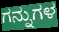
ಗನ್ನುಗಳ